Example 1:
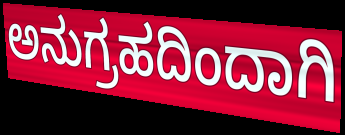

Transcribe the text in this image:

ಅನುಗ್ರಹದಿಂದಾಗಿ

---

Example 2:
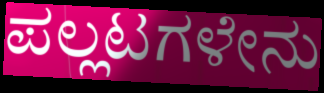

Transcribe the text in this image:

ಪಲ್ಲಟಗಳೇನು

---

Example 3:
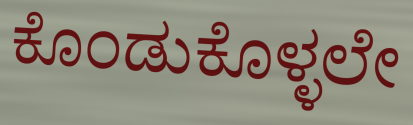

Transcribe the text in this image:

ಕೊಂಡುಕೊಳ್ಳಲೇ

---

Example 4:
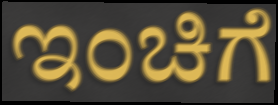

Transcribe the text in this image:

ಇಂಚಿಗೆ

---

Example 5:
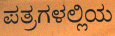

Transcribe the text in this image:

ಪತ್ರಗಳಲ್ಲಿಯ